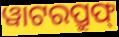
ୱାଟରପ୍ରୁଫ୍